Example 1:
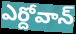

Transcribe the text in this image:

ఎర్దోవాన్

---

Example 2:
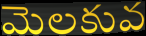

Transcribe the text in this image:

మెలకువ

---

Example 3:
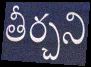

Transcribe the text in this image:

తీర్చని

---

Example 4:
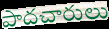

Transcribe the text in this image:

పాదచారులు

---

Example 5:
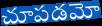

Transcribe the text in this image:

చూపడమో